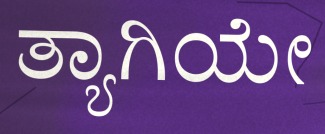
ತ್ಯಾಗಿಯೇ